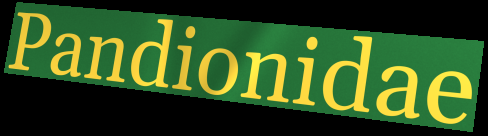
Pandionidae